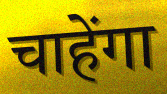
चाहेंगा